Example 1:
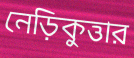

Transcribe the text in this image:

নেড়িকুত্তার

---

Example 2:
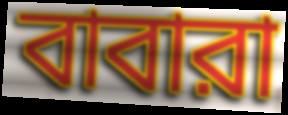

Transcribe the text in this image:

বাবারা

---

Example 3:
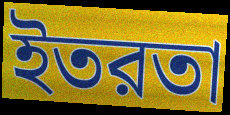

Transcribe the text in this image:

ইতরতা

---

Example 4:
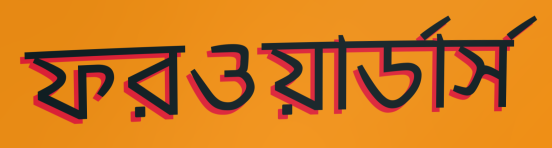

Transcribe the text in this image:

ফরওয়ার্ডার্স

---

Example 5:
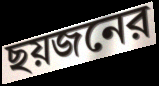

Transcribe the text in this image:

ছয়জনের